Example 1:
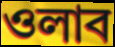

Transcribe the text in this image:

ওলাব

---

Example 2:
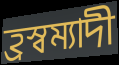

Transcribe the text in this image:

হ্ৰস্বম্যাদী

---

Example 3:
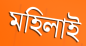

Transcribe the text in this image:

মহিলাই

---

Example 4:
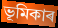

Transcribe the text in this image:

ভূমিকাৰ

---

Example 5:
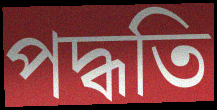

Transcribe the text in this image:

পদ্ধতি